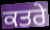
ਕਤਰੇ